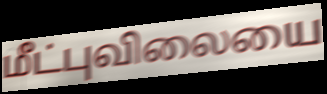
மீட்புவிலையை